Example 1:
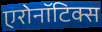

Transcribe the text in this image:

एरोनॉटिक्स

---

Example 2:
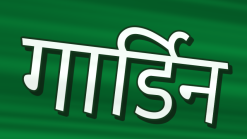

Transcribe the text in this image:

गार्डिन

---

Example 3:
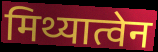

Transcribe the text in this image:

मिथ्यात्वेन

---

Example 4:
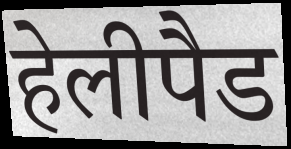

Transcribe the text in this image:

हेलीपैड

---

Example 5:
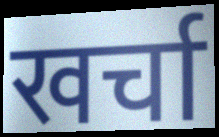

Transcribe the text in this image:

खर्चा